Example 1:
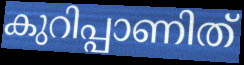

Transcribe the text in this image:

കുറിപ്പാണിത്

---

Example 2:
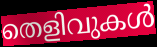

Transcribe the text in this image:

തെളിവുകൾ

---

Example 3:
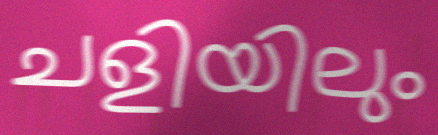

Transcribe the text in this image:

ചളിയിലും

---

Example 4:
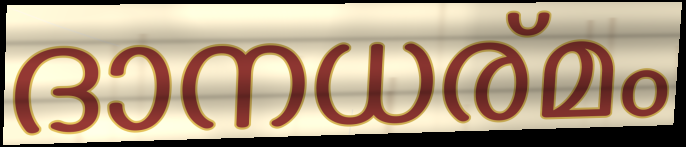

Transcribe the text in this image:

ദാനധര്മം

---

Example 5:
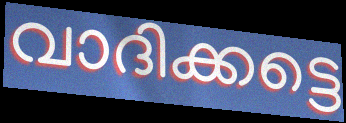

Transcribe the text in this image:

വാദിക്കട്ടെ